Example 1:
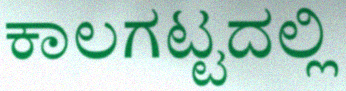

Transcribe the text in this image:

ಕಾಲಗಟ್ಟದಲ್ಲಿ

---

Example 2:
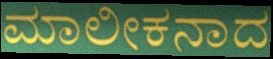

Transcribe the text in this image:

ಮಾಲೀಕನಾದ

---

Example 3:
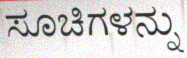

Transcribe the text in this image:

ಸೂಚಿಗಳನ್ನು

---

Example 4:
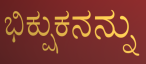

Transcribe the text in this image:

ಭಿಕ್ಷುಕನನ್ನು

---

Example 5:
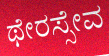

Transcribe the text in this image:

ಥೇರಸ್ಸೇವ